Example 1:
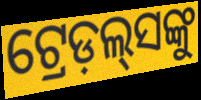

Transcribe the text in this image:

ଟ୍ରେଡ଼ଲ୍‍ସଙ୍କୁ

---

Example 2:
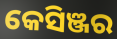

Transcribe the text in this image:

କେସିଞ୍ଜର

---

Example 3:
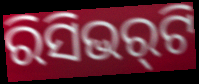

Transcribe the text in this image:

ରିସିଭର୍‌ଟି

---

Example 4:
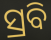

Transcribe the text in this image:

ସ୍ରବି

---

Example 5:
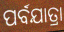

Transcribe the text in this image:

ପର୍ବଯାତ୍ରା